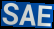
SAE